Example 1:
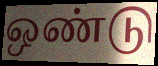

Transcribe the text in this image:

ஒண்டு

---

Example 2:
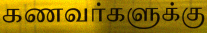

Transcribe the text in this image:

கணவர்களுக்கு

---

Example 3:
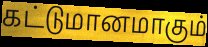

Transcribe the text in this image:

கட்டுமானமாகும்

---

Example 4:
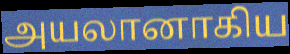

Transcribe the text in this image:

அயலானாகிய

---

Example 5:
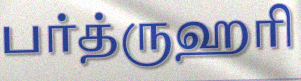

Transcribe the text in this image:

பர்த்ருஹரி